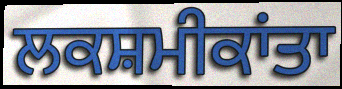
ਲਕਸ਼ਮੀਕਾਂਤਾ